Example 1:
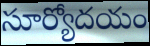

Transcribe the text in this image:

సూర్యోదయం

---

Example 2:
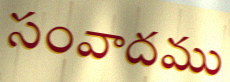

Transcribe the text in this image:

సంవాదము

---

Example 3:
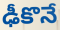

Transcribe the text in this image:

ఢీకొనే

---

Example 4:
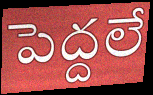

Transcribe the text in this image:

పెద్దలే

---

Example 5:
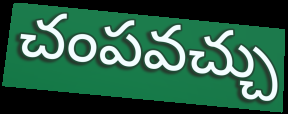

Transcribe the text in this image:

చంపవచ్చు